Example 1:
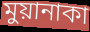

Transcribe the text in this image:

মুয়ানাকা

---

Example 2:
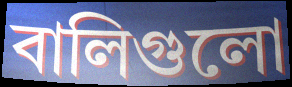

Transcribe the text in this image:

বালিগুলো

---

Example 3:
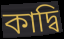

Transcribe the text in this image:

কাদ্বি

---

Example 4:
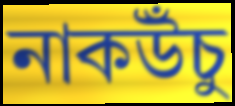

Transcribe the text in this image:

নাকউঁচু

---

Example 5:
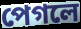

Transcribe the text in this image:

পেগলে